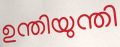
ഉന്തിയുന്തി